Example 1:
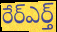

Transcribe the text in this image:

రేర్ఎర్త్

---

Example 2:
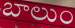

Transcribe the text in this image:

బాలుం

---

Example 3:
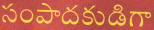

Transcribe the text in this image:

సంపాదకుడిగా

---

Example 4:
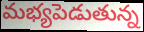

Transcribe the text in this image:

మభ్యపెడుతున్న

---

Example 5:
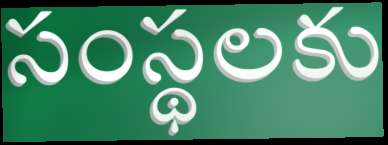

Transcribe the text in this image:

సంస్థలకు